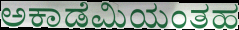
ಅಕಾಡೆಮಿಯಂತಹ